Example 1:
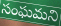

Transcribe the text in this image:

సంఘమని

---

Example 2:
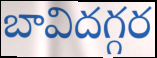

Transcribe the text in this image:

బావిదగ్గర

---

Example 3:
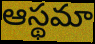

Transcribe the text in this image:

ఆస్థమా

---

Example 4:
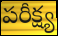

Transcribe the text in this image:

పరీక్ష్య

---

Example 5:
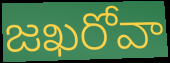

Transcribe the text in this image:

జఖరోవా